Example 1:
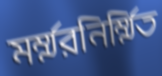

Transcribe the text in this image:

মর্ম্মরনির্ম্মিত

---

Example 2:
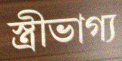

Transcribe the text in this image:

স্ত্রীভাগ্য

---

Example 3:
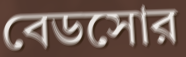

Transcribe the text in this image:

বেডসোর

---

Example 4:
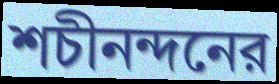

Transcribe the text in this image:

শচীনন্দনের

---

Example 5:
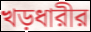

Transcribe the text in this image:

খড়ধারীর